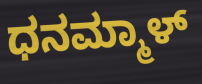
ಧನಮ್ಮಾಳ್